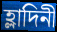
হ্লাদিনী